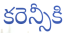
కరెన్సీకి